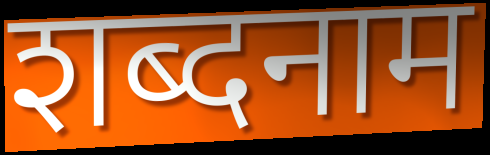
शब्दनाम